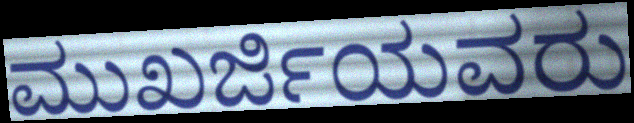
ಮುಖರ್ಜಿಯವರು